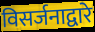
विसर्जनाद्वारे